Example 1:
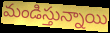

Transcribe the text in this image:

మండిస్తున్నాయి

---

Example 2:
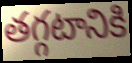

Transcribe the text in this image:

తగ్గటానికి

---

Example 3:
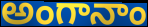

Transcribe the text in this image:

అంగానాం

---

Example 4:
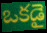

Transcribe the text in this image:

ఒకడై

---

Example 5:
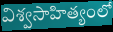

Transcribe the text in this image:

విశ్వసాహిత్యంలో